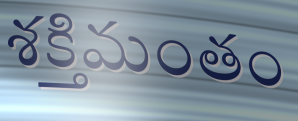
శక్తిమంతం